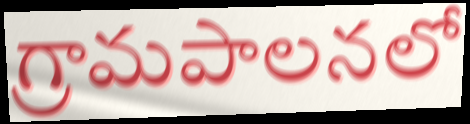
గ్రామపాలనలో